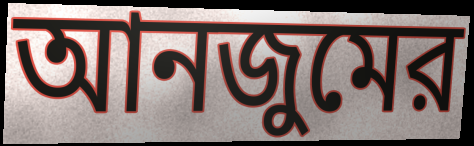
আনজুমের